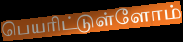
பெயரிட்டுள்ளோம்